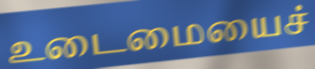
உடைமையைச்